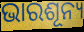
ଭାରଶୂନ୍ୟ